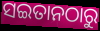
ସଇତାନଠାରୁ